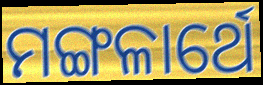
ମଙ୍ଗଳାର୍ଥେ